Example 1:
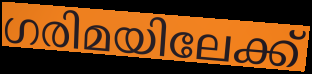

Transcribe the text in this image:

ഗരിമയിലേക്ക്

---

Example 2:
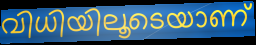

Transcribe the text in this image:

വിധിയിലൂടെയാണ്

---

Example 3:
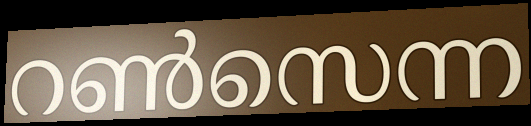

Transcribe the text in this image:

റൺസെന്ന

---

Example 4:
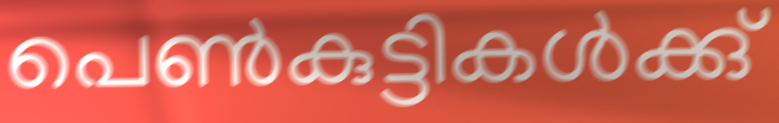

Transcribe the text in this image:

പെൺകുട്ടികൾക്കു്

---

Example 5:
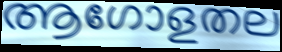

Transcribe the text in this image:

ആഗോളതല